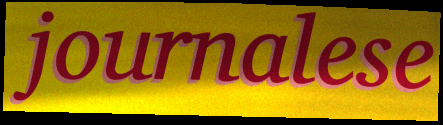
journalese